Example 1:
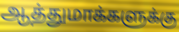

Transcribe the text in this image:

ஆத்துமாக்களுக்கு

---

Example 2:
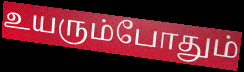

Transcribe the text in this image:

உயரும்போதும்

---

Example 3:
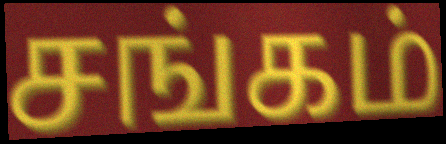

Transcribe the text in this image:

சங்கம்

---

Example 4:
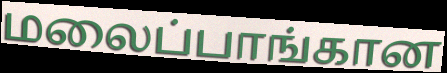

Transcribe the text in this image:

மலைப்பாங்கான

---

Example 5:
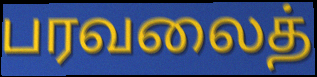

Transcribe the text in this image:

பரவலைத்